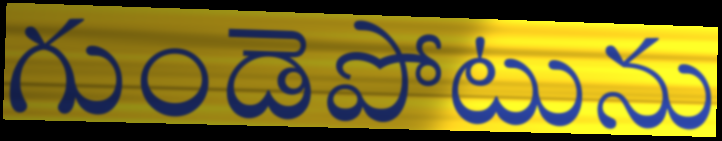
గుండెపోటును